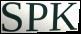
SPK